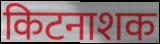
किटनाशक